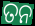
ତନ